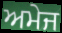
ਅਮੇਜ